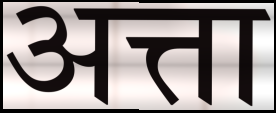
अत्ता